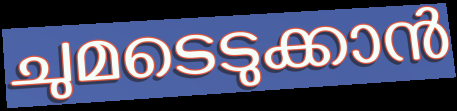
ചുമടെടുക്കാൻ